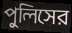
পুলিসের